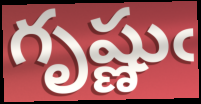
గృష్ణుఁ